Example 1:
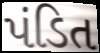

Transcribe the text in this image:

પંડિત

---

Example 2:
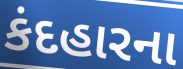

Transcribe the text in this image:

કંદહારના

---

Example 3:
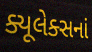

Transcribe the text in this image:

ક્યૂલેક્સનાં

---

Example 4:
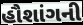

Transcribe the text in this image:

હૌશાંગની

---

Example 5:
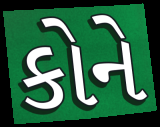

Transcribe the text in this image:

કોને